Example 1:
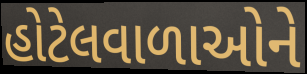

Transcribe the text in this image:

હોટેલવાળાઓને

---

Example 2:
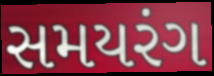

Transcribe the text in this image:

સમયરંગ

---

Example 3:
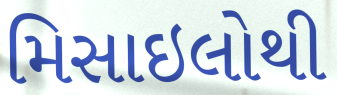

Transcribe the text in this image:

મિસાઇલોથી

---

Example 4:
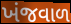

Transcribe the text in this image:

ખંજવાળ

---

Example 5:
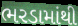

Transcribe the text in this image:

ભરડામાંથી